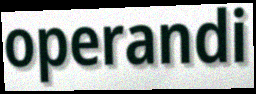
operandi